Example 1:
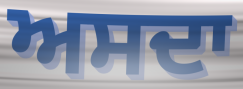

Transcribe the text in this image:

ਅਸਦਾ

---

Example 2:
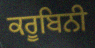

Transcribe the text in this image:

ਕਰੂਬਿਨੀ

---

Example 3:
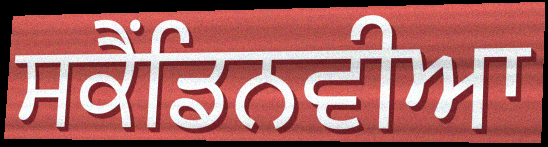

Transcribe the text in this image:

ਸਕੈਂਡਿਨਵੀਆ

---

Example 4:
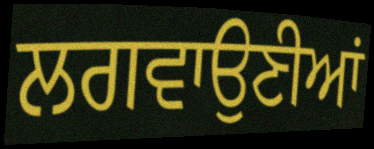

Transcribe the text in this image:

ਲਗਵਾਉਣੀਆਂ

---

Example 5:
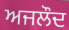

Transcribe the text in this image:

ਅਜਲੌਦ